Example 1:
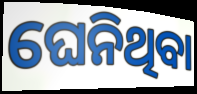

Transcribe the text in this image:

ଘେନିଥିବା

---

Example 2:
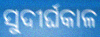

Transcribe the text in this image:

ସୁଦୀର୍ଘକାଳ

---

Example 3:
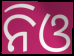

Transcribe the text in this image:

ନିଓ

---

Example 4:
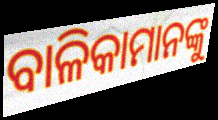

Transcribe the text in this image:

ବାଳିକାମାନଙ୍କୁ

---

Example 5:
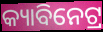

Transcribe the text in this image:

କ୍ୟାବିନେଟ୍ର